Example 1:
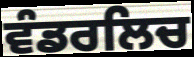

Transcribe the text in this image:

ਵੰਡਰਲਿਚ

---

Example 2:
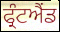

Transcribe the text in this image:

ਫ੍ਰੰਟਐਂਡ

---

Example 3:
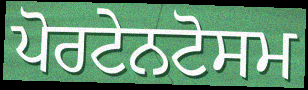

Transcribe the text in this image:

ਪੋਰਟੇਨਟੋਸਮ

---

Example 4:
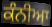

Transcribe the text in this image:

ਕੰਨੀਆ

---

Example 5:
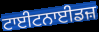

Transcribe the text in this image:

ਟਾਈਟਨਾਈਡਜ਼